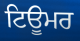
ਟਿਊਮਰ